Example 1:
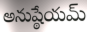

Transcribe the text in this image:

అనుష్ఠేయమ్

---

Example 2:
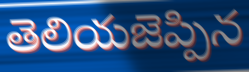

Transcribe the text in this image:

తెలియజెప్పిన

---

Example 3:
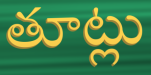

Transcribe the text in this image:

తూట్లు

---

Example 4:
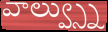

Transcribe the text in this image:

వాల్వ్స్ను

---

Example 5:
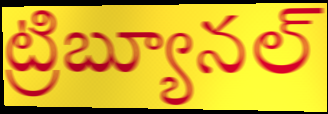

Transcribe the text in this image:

ట్రిబ్యూనల్